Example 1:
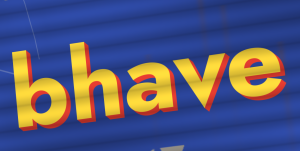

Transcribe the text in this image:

bhave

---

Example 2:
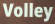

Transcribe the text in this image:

Volley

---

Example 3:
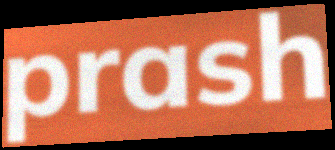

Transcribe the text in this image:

prash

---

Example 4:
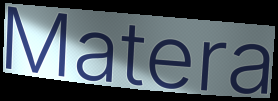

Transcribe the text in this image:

Matera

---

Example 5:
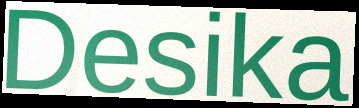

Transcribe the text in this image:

Desika